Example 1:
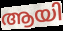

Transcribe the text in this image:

ആയി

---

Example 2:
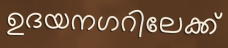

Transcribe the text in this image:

ഉദയനഗറിലേക്ക്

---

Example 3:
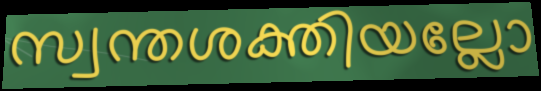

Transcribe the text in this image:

സ്വന്തശക്തിയല്ലോ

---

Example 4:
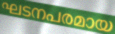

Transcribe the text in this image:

ഘടനപരമായ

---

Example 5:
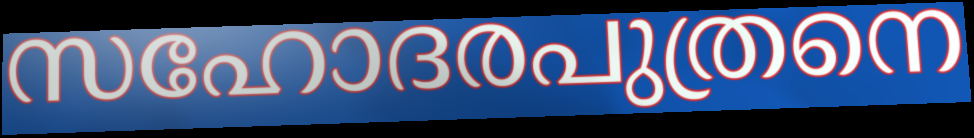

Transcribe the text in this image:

സഹോദരപുത്രനെ